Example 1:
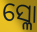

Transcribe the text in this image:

ସ୍ଳୋ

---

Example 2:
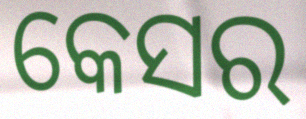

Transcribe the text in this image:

କେସର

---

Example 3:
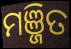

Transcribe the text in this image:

ମଞ୍ଜିତ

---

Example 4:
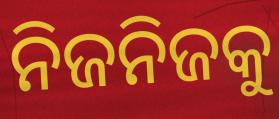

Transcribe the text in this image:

ନିଜନିଜକୁ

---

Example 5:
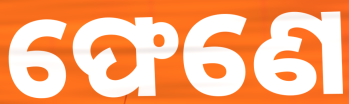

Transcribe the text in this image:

ଫେଣେ